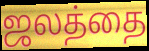
ஜலத்தை